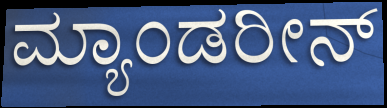
ಮ್ಯಾಂಡರೀನ್